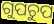
ଗୁପଚୁପ